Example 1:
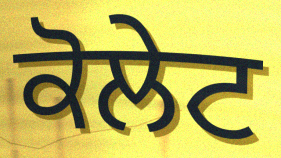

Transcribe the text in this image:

ਕੋਲੇਟ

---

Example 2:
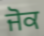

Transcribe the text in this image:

ਜੋਕ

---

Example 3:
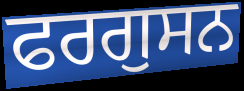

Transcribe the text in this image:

ਫਰਗੁਸਨ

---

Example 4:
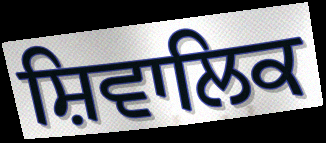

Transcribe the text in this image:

ਸ਼ਿਵਾਲਿਕ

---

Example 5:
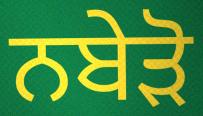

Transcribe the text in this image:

ਨਬੇੜੋ